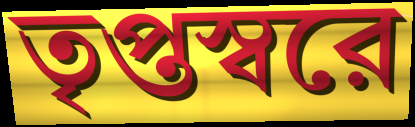
তৃপ্তস্বরে